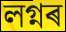
লগ্নৰ